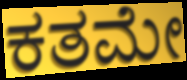
ಕತಮೇ